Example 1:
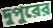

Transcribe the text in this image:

দুপুরের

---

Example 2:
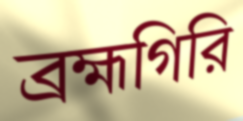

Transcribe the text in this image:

ব্রহ্মগিরি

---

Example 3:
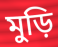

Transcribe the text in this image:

মুড়ি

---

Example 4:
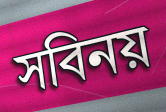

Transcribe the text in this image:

সবিনয়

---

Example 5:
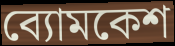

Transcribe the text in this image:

ব্যোমকেশ